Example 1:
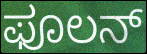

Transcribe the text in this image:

ಫೂಲನ್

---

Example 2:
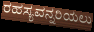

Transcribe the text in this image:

ರಹಸ್ಯವನ್ನರಿಯಲು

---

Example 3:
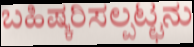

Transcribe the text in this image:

ಬಹಿಷ್ಕರಿಸಲ್ಪಟ್ಟನು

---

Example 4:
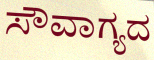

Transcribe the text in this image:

ಸೌವಾಗ್ಯದ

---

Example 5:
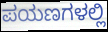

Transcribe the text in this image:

ಪಯಣಗಳಲ್ಲಿ